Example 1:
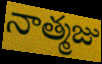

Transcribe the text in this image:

నాత్మజు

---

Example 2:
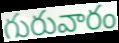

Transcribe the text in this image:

గురువారం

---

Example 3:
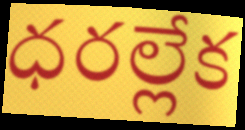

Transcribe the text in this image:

ధరల్లేక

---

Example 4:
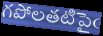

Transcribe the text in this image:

గపోలతటిపైఁ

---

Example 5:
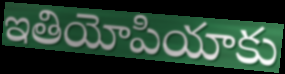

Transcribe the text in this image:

ఇతియోపియాకు